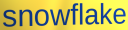
snowflake